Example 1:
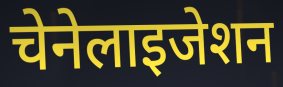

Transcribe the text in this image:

चेनेलाइजेशन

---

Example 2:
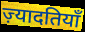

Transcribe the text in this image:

ज़्यादतियाँ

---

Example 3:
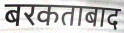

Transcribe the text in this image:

बरकताबाद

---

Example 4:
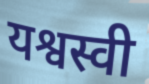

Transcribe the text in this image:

यश्वस्वी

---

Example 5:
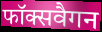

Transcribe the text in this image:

फॉक्सवैगन